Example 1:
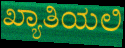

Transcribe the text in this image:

ಖ್ಯಾತಿಯಲಿ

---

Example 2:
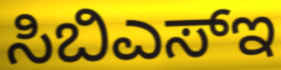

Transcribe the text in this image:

ಸಿಬಿಎಸ್ಇ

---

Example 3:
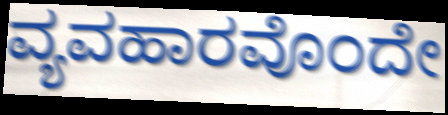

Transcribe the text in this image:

ವ್ಯವಹಾರವೊಂದೇ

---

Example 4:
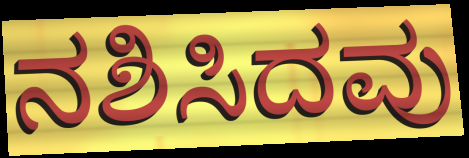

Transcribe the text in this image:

ನಶಿಸಿದವು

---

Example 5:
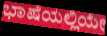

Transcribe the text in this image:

ಭಾಷೆಯಲ್ಲಿಯೇ